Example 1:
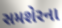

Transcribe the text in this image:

સમશેરના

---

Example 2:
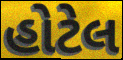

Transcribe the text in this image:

હોટેલ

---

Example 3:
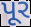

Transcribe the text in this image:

પૂર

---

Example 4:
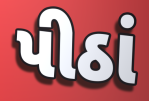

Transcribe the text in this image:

પીઠાં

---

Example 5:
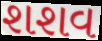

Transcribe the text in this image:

શશવ